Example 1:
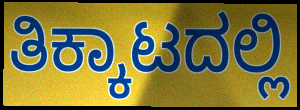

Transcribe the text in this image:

ತಿಕ್ಕಾಟದಲ್ಲಿ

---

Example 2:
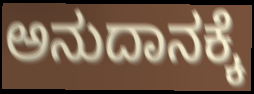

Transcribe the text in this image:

ಅನುದಾನಕ್ಕೆ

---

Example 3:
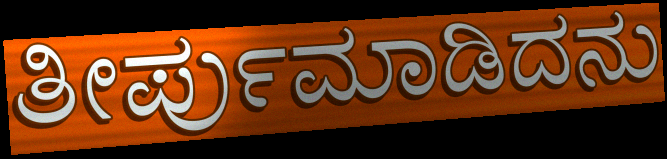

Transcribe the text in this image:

ತೀರ್ಪುಮಾಡಿದನು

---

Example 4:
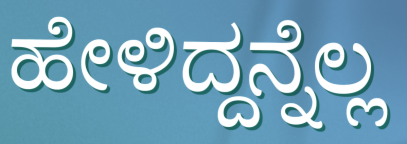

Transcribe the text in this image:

ಹೇಳಿದ್ದನ್ನೆಲ್ಲ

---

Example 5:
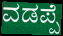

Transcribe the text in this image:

ವಡಪ್ಪೆ